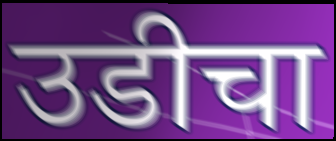
उडीचा